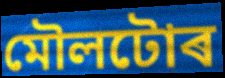
মৌলটোৰ